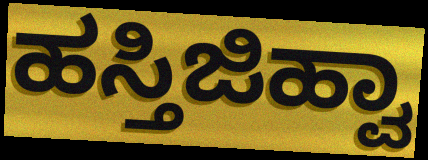
ಹಸ್ತಿಜಿಹ್ವಾ